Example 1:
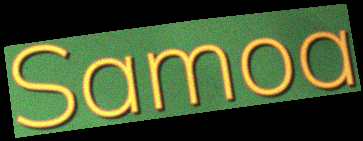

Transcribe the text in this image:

Samoa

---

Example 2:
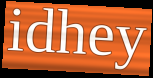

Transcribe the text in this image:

idhey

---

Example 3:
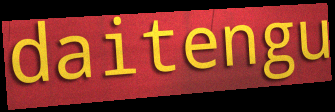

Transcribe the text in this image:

daitengu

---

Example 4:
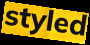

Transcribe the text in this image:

styled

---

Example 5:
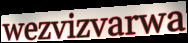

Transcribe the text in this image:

wezvizvarwa